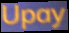
Upay